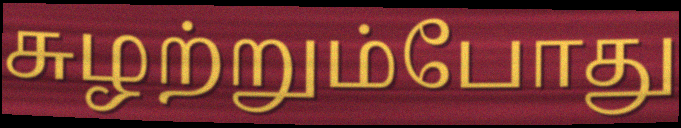
சுழற்றும்போது